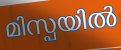
മിസ്പയിൽ